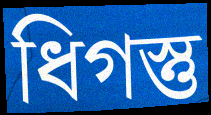
ধিগস্তু